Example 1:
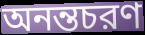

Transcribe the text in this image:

অনন্তচরণ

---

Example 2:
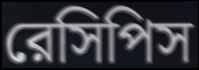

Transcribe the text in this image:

রেসিপিস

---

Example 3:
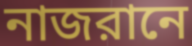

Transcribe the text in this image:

নাজরানে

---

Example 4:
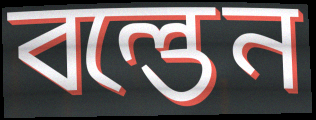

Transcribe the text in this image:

বল্তেন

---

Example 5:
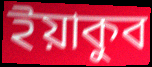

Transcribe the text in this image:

ইয়াকুব